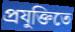
প্রযুক্তিতে